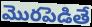
మొరపెడితే